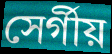
সের্গীয়